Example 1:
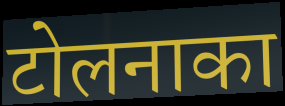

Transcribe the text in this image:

टोलनाका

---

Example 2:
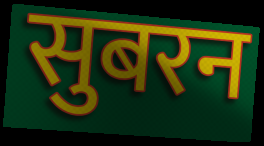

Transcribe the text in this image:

सुबरन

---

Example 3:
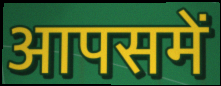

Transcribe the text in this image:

आपसमें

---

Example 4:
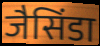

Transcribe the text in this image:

जैसिंडा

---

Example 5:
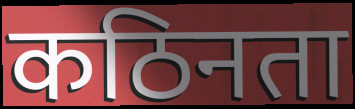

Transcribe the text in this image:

कठिनता